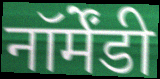
नॉर्मेंडी